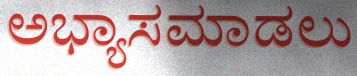
ಅಭ್ಯಾಸಮಾಡಲು